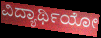
ವಿದ್ಯಾರ್ಥಿಯೋ